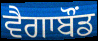
ਵੈਗਾਬੌਂਡ